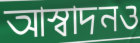
আস্বাদনও